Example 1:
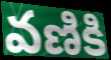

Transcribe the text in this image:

వణికి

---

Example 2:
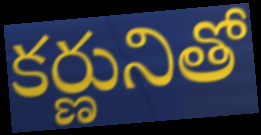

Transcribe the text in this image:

కర్ణునితో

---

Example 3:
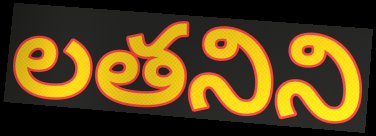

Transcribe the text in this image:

లతనిని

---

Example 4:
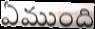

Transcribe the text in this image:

ఏముంది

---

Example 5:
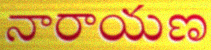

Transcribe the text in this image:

నారాయణ